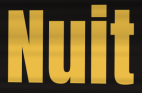
Nuit